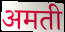
अमती